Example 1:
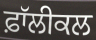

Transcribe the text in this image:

ਫ਼ਾੱਲੀਕਲ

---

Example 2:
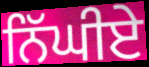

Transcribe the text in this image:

ਨਿੱਘੀਏ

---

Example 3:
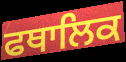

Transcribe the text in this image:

ਫਥਾਲਿਕ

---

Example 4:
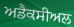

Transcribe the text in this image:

ਅਡੈਕਸੀਅਲ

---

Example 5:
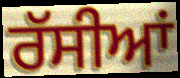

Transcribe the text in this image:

ਰੱਸੀਆਂ